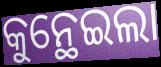
କୁନ୍ଥେଇଲା